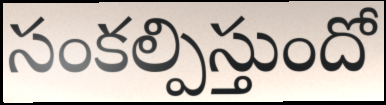
సంకల్పిస్తుందో